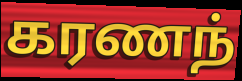
கரணந்